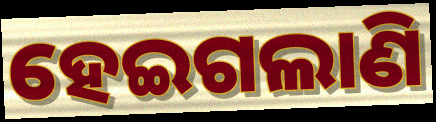
ହେଇଗଲାଣି